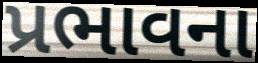
પ્રભાવના